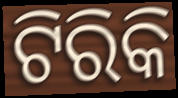
ଟିରିକି